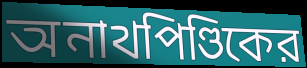
অনাথপিণ্ডিকের